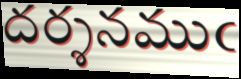
దర్శనముఁ